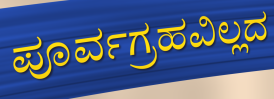
ಪೂರ್ವಗ್ರಹವಿಲ್ಲದ